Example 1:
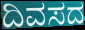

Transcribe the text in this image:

ದಿವಸದ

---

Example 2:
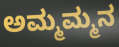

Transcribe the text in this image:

ಅಮ್ಮಮ್ಮನ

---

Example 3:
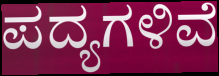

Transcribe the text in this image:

ಪದ್ಯಗಳಿವೆ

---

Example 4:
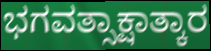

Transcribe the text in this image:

ಭಗವತ್ಸಾಕ್ಷಾತ್ಕಾರ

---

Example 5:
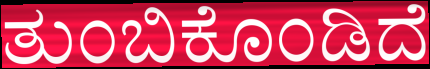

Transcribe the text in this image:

ತುಂಬಿಕೊಂಡಿದೆ